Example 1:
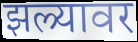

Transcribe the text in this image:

झल्यावर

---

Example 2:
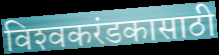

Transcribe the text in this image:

विश्वकरंडकासाठी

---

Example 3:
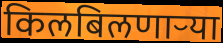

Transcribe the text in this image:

किलबिलणाऱ्या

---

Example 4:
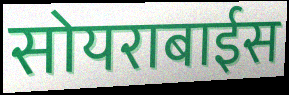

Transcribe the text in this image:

सोयराबाईस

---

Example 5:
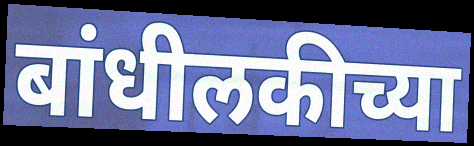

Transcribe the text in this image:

बांधीलकीच्या